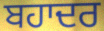
ਬਹਾਦਰ